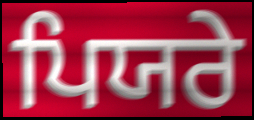
ਪਿਯਰੇ